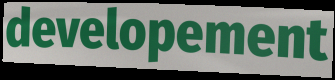
developement